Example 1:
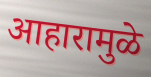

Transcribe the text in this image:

आहारामुळे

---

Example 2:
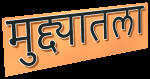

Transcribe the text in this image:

मुद्द्यातला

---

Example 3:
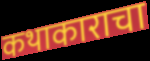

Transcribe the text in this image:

कथाकाराचा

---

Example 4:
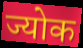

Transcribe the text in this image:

ज्योक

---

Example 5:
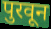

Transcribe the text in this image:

पुरवून